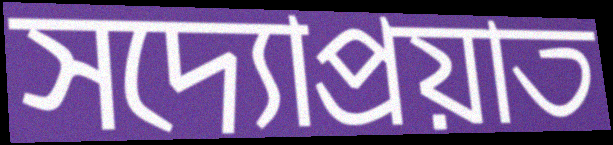
সদ্যোপ্রয়াত